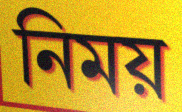
নিময়